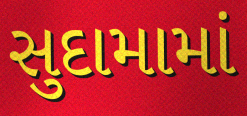
સુદામામાં